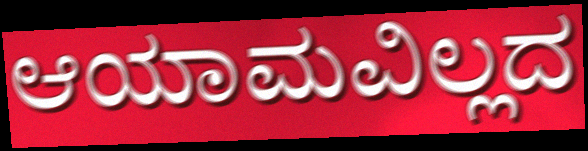
ಆಯಾಮವಿಲ್ಲದ